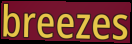
breezes